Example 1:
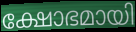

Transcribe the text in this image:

ക്ഷോഭമായി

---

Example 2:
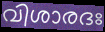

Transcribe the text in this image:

വിശാരദഃ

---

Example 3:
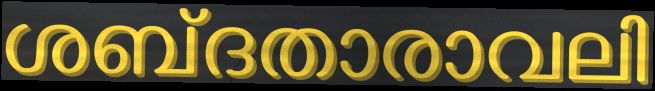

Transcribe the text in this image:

ശബ്‌ദതാരാവലി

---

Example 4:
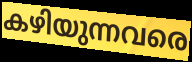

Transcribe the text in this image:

കഴിയുന്നവരെ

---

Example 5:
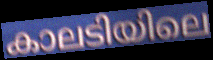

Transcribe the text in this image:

കാലടിയിലെ